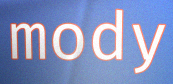
mody